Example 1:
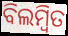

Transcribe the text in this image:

ବିଲମ୍ୱିତ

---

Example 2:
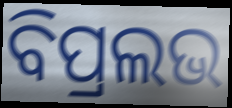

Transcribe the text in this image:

ବିପ୍ରଲଭ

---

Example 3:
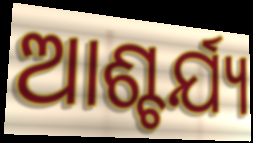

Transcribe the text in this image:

ଆଶ୍ଚର୍ଯ୍ୟ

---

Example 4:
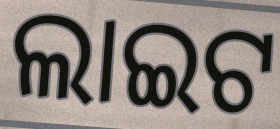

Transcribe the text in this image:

ଲାଇଟ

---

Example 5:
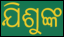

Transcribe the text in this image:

ଯିଶୁଙ୍କ